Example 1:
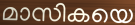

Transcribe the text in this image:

മാസികയെ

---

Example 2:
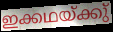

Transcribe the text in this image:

ഇക്കഥയ്ക്കു്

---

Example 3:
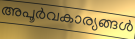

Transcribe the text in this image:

അപൂർവകാര്യങ്ങൾ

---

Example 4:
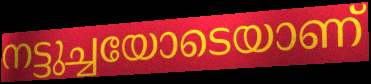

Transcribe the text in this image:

നട്ടുച്ചയോടെയാണ്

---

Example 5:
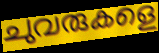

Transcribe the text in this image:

ചുവരുകളെ